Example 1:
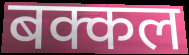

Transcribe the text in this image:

बक्कल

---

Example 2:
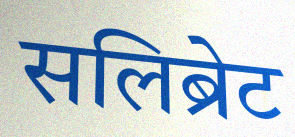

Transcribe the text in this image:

सलिब्रेट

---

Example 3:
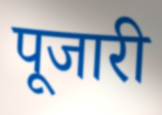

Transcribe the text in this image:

पूजारी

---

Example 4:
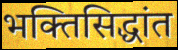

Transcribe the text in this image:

भक्तिसिद्धांत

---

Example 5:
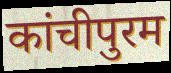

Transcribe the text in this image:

कांचीपुरम